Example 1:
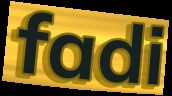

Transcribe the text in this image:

fadi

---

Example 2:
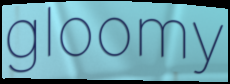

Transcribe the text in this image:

gloomy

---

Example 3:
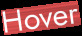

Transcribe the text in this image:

Hover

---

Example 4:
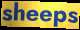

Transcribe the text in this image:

sheeps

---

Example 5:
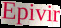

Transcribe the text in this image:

Epivir